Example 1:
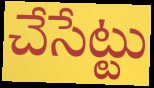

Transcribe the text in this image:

చేసేట్టు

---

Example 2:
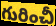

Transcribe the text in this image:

గురించీ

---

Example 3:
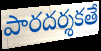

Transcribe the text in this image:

పారదర్శకతే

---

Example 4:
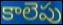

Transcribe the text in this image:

కాలెపు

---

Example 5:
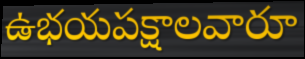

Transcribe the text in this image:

ఉభయపక్షాలవారూ